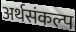
अर्थसंकल्प